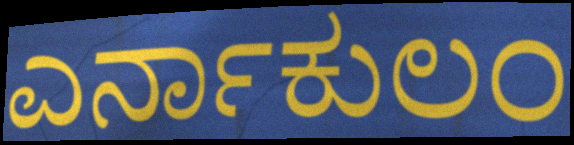
ಎರ್ನಾಕುಲಂ